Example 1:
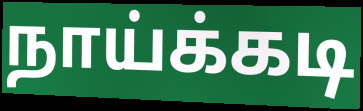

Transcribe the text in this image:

நாய்க்கடி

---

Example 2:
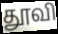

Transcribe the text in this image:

தூவி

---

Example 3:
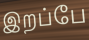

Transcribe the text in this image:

இறப்பே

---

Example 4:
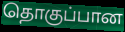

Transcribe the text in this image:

தொகுப்பான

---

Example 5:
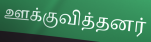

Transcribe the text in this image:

ஊக்குவித்தனர்